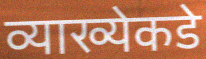
व्याख्येकडे